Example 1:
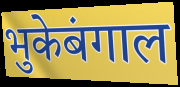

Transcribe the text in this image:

भुकेबंगाल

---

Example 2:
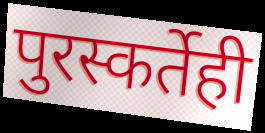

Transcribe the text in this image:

पुरस्कर्तेही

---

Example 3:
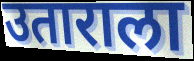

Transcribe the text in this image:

उताराला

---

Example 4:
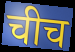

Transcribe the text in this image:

चीच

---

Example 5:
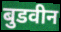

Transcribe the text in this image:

बुडवीन